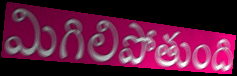
మిగిలిపోతుంది